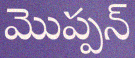
మొప్పన్